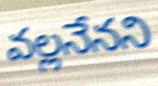
వల్లనేనని